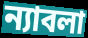
ন্যাবলা